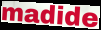
madide